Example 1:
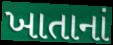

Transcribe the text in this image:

ખાતાનાં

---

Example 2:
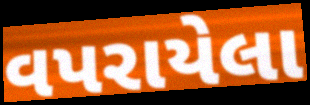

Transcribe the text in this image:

વપરાયેલા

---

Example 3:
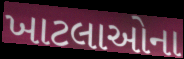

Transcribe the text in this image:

ખાટલાઓના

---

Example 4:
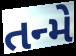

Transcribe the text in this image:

તન્મે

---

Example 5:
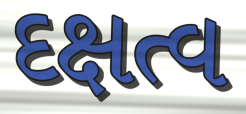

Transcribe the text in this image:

દક્ષત્વ